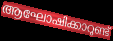
ആഘോഷിക്കാറുണ്ട്